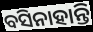
ବସିନାହାନ୍ତି